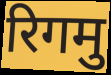
रिगमु